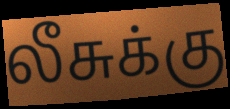
லீசுக்கு